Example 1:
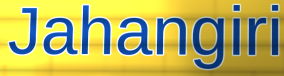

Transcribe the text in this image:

Jahangiri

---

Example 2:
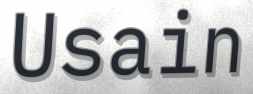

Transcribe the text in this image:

Usain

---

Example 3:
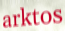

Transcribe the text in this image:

arktos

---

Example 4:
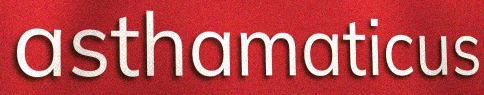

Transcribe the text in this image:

asthamaticus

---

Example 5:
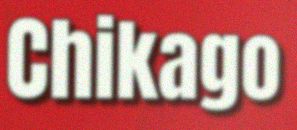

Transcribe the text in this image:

Chikago